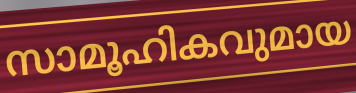
സാമൂഹികവുമായ